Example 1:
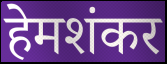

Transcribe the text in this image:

हेमशंकर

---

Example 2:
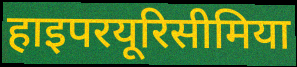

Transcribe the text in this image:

हाइपरयूरिसीमिया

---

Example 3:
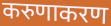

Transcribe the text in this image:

करुणाकरण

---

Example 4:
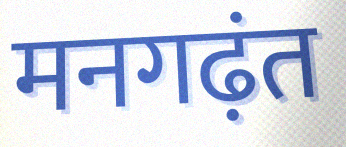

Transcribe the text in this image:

मनगढ़ंत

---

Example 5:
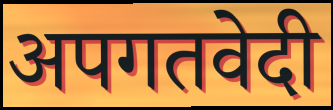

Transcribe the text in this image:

अपगतवेदी